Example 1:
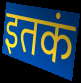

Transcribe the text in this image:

इतकं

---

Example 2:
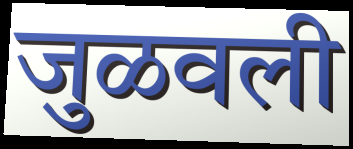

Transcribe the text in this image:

जुळवली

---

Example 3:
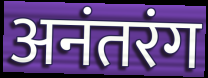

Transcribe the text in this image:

अनंतरंग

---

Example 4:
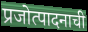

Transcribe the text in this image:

प्रजोत्पादनाची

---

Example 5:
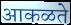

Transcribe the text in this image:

आकळते